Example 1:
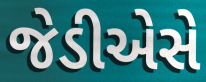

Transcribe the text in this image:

જેડીએસે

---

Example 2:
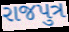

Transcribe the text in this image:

રાજપુત્ર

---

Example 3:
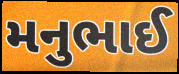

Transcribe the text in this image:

મનુભાઈ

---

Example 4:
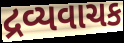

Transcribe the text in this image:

દ્રવ્યવાચક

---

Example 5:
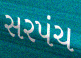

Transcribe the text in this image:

સરપંચ